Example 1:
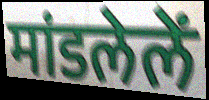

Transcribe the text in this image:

मांडलेलें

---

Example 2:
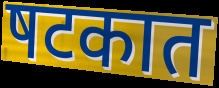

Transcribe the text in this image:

षटकात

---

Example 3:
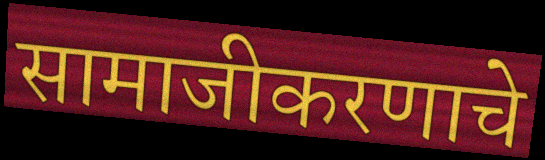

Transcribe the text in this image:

सामाजीकरणाचे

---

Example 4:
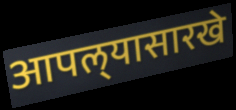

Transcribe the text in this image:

आपल्यासारखे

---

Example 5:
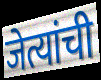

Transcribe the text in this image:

जेत्यांची